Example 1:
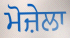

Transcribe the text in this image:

ਮੋਜ਼ੇਲਾ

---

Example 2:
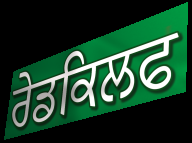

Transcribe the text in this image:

ਰੇਡਕਿਲਫ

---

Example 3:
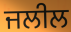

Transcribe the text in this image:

ਜਲੀਲ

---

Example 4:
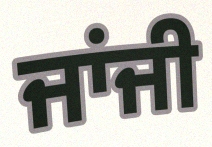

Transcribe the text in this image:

ਜਾਂਜੀ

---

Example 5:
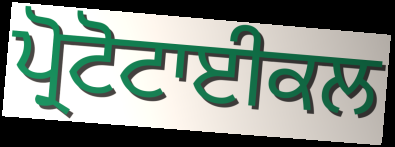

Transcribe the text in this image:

ਪ੍ਰੋਟੋਟਾਈਕਲ